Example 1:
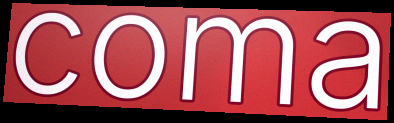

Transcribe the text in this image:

coma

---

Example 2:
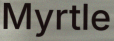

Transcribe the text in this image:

Myrtle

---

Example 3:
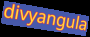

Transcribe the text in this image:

divyangula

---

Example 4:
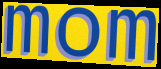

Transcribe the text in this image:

mom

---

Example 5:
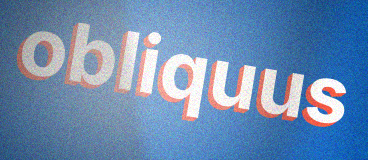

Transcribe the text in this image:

obliquus